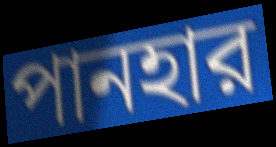
পানহার